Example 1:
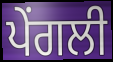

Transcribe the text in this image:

ਪੇਂਗਲੀ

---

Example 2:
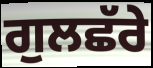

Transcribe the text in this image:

ਗੁਲਛੱਰੇ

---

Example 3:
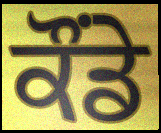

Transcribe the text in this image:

ਕੌਂਡੇ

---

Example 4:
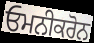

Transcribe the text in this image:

ਓਮਨੀਕਰੋਨ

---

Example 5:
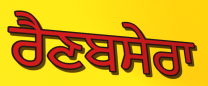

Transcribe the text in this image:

ਰੈਣਬਸੇਰਾ